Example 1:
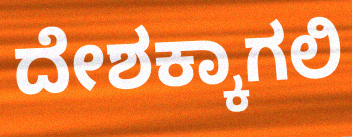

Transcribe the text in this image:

ದೇಶಕ್ಕಾಗಲಿ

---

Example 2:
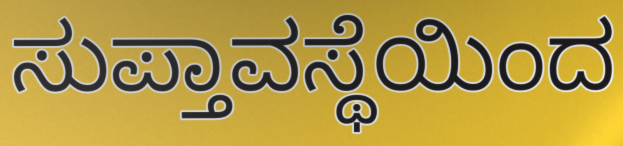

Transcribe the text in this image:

ಸುಪ್ತಾವಸ್ಥೆಯಿಂದ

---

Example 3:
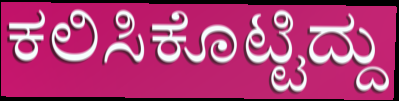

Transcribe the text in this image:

ಕಲಿಸಿಕೊಟ್ಟಿದ್ದು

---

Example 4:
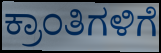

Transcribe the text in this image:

ಕ್ರಾಂತಿಗಳಿಗೆ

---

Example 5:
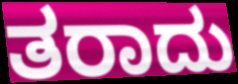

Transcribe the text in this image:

ತರಾದು